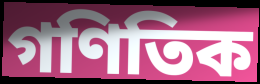
গণিতিক